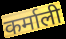
कर्माली